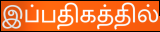
இப்பதிகத்தில்